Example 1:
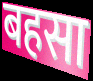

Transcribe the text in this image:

बहसा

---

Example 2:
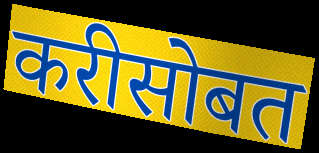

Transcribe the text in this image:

करीसोबत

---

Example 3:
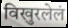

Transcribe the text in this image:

विखुरलेलं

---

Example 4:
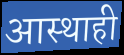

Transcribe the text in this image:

आस्थाही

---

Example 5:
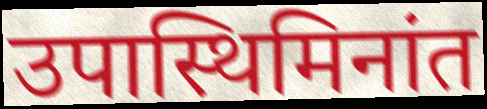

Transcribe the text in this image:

उपास्थिमिनांत